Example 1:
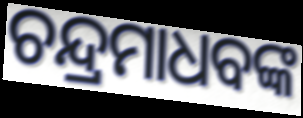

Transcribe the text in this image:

ଚନ୍ଦ୍ରମାଧବଙ୍କ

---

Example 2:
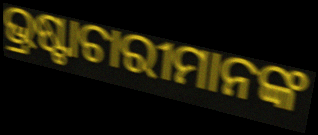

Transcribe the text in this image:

ଭ୍ରଷ୍ଟାଚାରୀମାନଙ୍କ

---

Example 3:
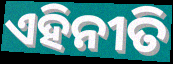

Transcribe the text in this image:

ଏହିନୀତି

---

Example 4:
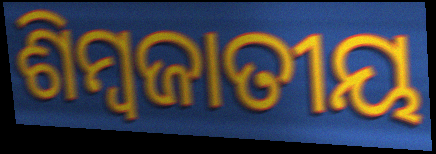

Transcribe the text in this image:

ଶିମ୍ବଜାତୀୟ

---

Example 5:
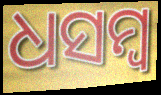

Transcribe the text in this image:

ଧସମ୍ବ